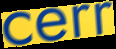
cerr